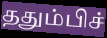
ததும்பிச்